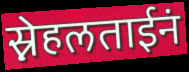
स्नेहलताईनं